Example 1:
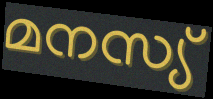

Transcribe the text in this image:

മനസ്യ്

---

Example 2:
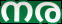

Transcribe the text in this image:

നര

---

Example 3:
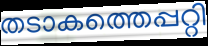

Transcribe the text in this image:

തടാകത്തെപ്പറ്റി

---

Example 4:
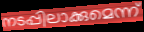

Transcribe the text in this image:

നടപ്പിലാക്കുമെന്ന്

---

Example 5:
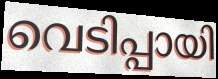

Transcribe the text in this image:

വെടിപ്പായി